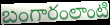
బంగారంలాంటి